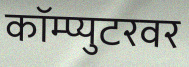
कॉम्प्युटरवर